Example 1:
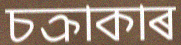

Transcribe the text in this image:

চক্ৰাকাৰ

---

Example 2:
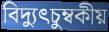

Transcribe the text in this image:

বিদ্যুৎচুম্বকীয়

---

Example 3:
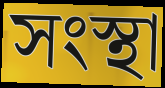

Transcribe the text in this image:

সংস্থা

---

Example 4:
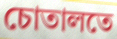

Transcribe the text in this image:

চোতালতে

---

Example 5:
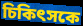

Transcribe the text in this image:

চিকিৎসকে